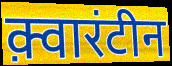
क़्वारंटीन